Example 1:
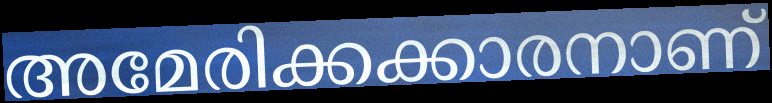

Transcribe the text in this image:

അമേരിക്കക്കാരനാണ്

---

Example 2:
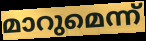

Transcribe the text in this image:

മാറുമെന്ന്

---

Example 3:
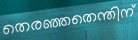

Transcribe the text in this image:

തെരഞ്ഞതെന്തിന്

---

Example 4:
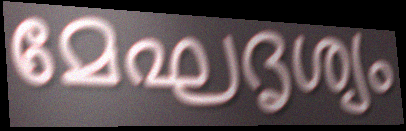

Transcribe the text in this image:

മേഘദൃശ്യം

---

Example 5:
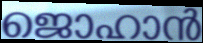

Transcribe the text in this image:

ജൊഹാൻ